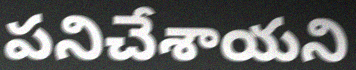
పనిచేశాయని